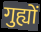
गुह्यों